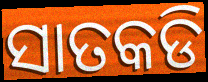
ସାତକଡି